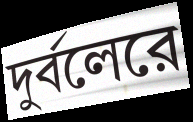
দুর্বলেরে